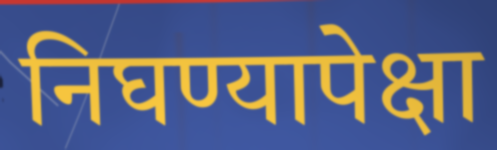
निघण्यापेक्षा